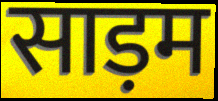
साड़म